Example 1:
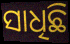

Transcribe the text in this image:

ସାଧିଛି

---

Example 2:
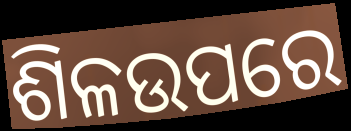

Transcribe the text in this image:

ଶିଳଉପରେ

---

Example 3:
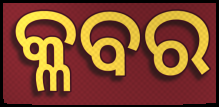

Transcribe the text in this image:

କ୍ଳବର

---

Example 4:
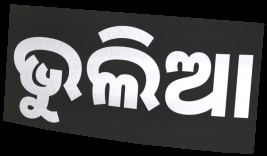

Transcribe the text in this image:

ଭୁଲିଆ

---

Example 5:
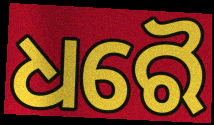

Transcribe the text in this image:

ଧରୈ